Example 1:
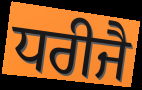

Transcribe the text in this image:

ਧਰੀਜੈ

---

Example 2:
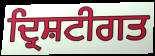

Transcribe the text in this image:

ਦ੍ਰਿਸ਼ਟੀਗਤ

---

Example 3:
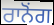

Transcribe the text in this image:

ਰਾਨੋਂਗ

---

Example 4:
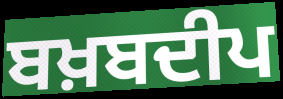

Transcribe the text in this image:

ਬਖ਼ਬਦੀਪ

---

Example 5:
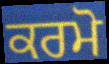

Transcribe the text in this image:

ਕਰਮੋ